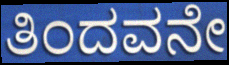
ತಿಂದವನೇ